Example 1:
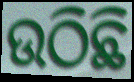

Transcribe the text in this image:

ଉଠିଛି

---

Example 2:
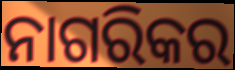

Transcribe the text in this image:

ନାଗରିକର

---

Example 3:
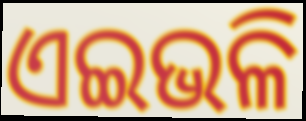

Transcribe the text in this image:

ଏଇଭଳି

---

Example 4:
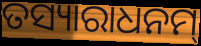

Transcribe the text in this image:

ତସ୍ୟାରାଧନମ୍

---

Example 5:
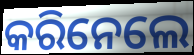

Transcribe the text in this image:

କରିନେଲେ